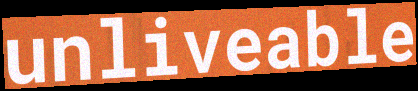
unliveable